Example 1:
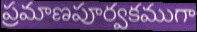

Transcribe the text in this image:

ప్రమాణపూర్వకముగా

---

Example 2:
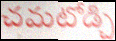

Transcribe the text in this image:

చమటోడ్చి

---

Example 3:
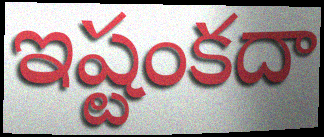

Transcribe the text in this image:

ఇష్టంకదా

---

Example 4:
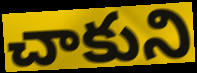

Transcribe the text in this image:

చాకుని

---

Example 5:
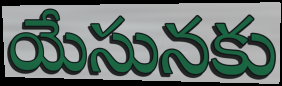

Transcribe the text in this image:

యేసునకు